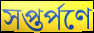
সপ্তর্পণে